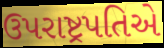
ઉપરાષ્ટ્રપતિએ